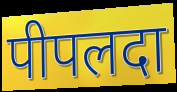
पीपलदा